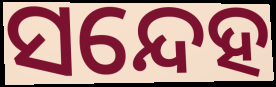
ସନ୍ଦେହ